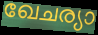
ഖേചര്യാ